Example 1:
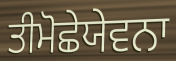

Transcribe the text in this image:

ਤੀਮੋਛੇਯੇਵਨਾ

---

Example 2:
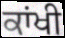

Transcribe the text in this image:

ਕਾਂਖੀ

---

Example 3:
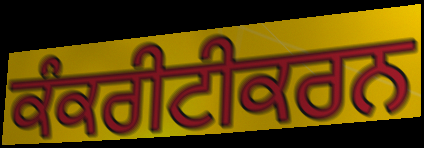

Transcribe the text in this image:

ਕੰਕਰੀਟੀਕਰਨ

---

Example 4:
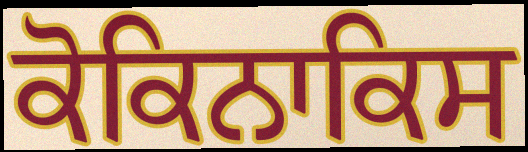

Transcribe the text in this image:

ਕੋਕਿਨਾਕਿਸ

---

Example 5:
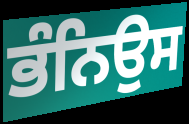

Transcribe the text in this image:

ਭੰਨਿਉਸ